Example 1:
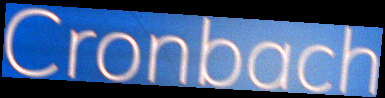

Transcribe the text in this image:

Cronbach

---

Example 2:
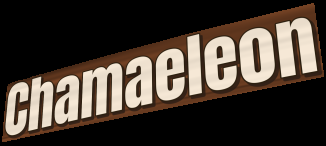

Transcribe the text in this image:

Chamaeleon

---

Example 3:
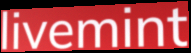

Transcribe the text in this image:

livemint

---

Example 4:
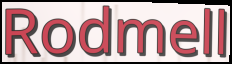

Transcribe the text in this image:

Rodmell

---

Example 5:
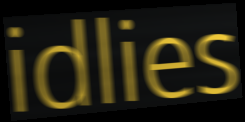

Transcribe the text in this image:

idlies